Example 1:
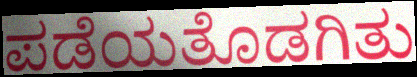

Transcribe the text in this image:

ಪಡೆಯತೊಡಗಿತು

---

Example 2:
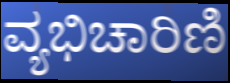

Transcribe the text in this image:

ವ್ಯಭಿಚಾರಿಣಿ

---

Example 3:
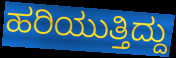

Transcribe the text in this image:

ಹರಿಯುತ್ತಿದ್ದು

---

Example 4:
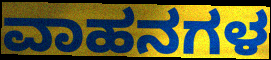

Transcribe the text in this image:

ವಾಹನಗಳ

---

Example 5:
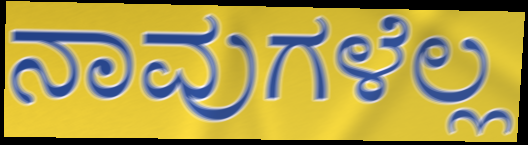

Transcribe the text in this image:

ನಾವುಗಳೆಲ್ಲ